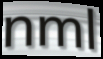
nml